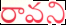
రావని